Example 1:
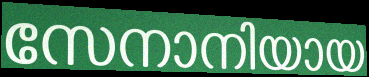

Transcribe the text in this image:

സേനാനിയായ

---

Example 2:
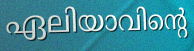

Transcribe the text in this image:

ഏലിയാവിന്റെ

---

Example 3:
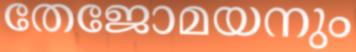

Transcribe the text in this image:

തേജോമയനും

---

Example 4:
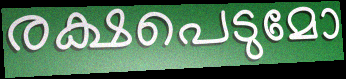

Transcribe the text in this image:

രക്ഷപെടുമോ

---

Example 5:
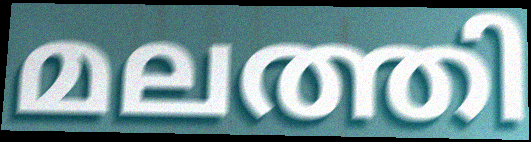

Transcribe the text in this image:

മലത്തി